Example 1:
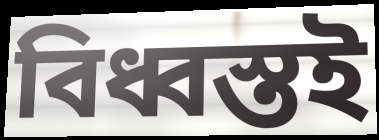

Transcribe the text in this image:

বিধ্বস্তই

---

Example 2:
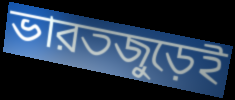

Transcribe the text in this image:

ভারতজুড়েই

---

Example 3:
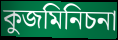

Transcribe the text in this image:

কুজমিনিচনা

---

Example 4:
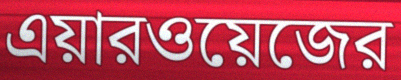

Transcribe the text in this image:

এয়ারওয়েজের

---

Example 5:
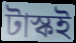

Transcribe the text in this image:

টাস্কই